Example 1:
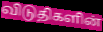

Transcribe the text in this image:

விடுதிகளின்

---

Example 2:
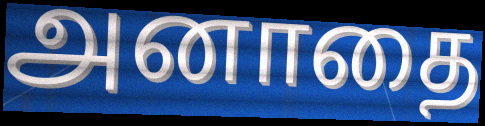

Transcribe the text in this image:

அனாதை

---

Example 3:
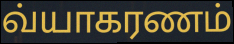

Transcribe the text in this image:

வ்யாகரணம்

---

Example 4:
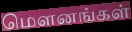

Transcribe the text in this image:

மௌனங்கள்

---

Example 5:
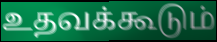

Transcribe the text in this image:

உதவக்கூடும்